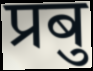
प्रबु